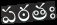
పఠతః